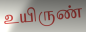
உயிருண்